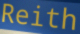
Reith